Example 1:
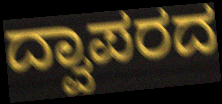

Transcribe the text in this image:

ದ್ವಾಪರದ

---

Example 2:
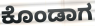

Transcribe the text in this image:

ಕೊಂಡಾಗ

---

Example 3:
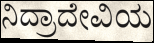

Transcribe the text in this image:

ನಿದ್ರಾದೇವಿಯ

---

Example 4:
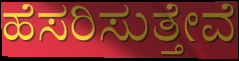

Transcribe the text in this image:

ಹೆಸರಿಸುತ್ತೇವೆ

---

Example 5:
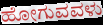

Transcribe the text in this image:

ಹೋಗುವವಳು